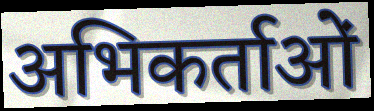
अभिकर्ताओं